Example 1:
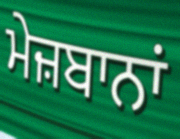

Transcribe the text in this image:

ਮੇਜ਼ਬਾਨਾਂ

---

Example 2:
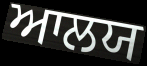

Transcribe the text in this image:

ਆਲਯ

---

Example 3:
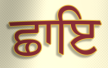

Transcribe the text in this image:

ਛਾਇ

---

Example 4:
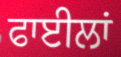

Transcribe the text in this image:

ਫਾਈਲਾਂ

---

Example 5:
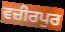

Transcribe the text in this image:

ਵਜ਼ੀਰਪੁਰ